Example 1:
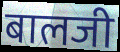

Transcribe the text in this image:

बालजी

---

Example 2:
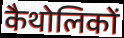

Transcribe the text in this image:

कैथोलिकों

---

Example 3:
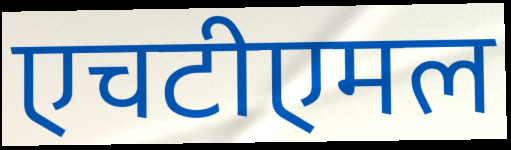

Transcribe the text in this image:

एचटीएमल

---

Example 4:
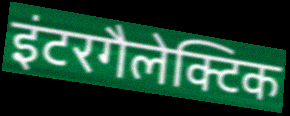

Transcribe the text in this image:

इंटरगैलेक्टिक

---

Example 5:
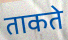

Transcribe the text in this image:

ताकते